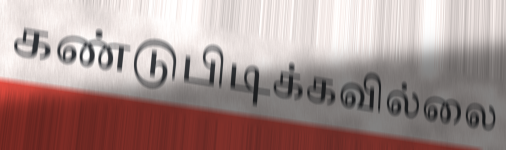
கண்டுபிடிக்கவில்லை